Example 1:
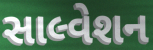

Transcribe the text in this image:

સાલ્વેશન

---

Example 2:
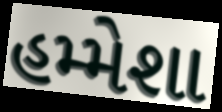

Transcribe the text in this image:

હમ્મેશા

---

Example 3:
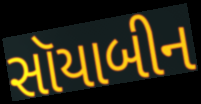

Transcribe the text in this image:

સૉયાબીન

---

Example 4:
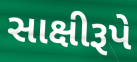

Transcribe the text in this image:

સાક્ષીરૂપે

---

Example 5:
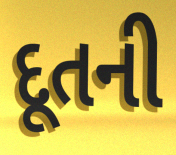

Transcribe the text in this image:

દૂતની